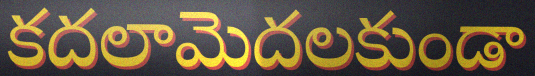
కదలామెదలకుండా